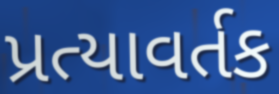
પ્રત્યાવર્તક